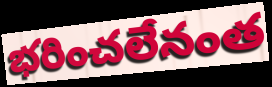
భరించలేనంత